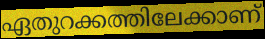
ഏതുറക്കത്തിലേക്കാണ്